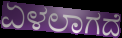
ಏಳಲಾಗದೆ